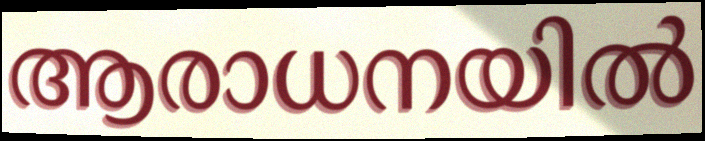
ആരാധനയിൽ